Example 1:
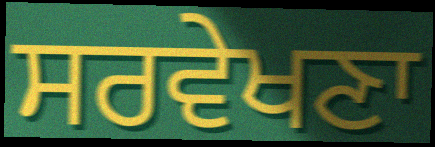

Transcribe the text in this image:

ਸਰਵੇਖਣਾ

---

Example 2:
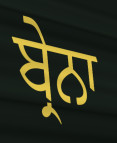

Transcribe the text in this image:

ਬ੍ਰੇਨਾ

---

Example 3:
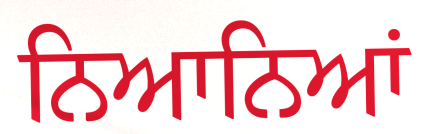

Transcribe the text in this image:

ਨਿਆਨਿਆਂ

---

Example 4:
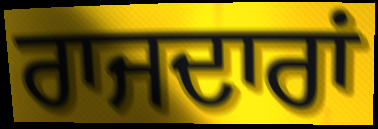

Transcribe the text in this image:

ਰਾਜਦਾਰਾਂ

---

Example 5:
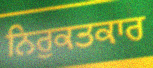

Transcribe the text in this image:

ਨਿਰੁਕਤਕਾਰ